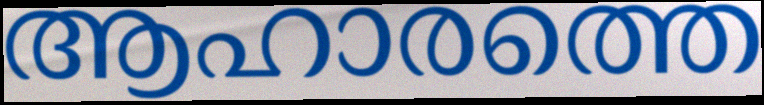
ആഹാരത്തെ